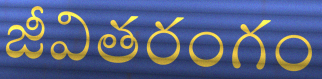
జీవితరంగం